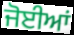
ਜੋਈਆਂ